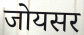
जोयसर